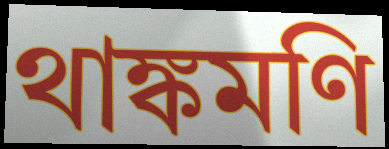
থাঙ্কমণি